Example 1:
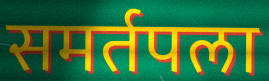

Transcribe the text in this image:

समर्तपला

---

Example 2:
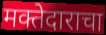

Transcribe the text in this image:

मक्तेदाराचा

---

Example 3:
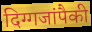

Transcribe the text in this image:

दिग्गजांपैकी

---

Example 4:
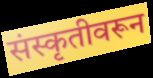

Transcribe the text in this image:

संस्कृतीवरून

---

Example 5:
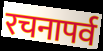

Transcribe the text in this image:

रचनापर्व